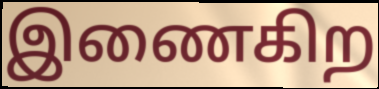
இணைகிற